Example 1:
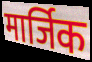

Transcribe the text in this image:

मार्जिक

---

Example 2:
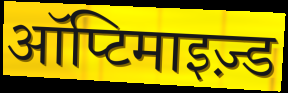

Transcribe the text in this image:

ऑप्टिमाइज़्ड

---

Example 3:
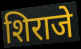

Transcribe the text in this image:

शिराजे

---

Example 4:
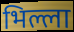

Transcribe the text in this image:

भिल्ला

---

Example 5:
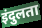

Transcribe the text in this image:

इंदुलता